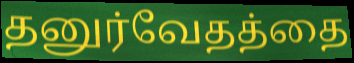
தனுர்வேதத்தை